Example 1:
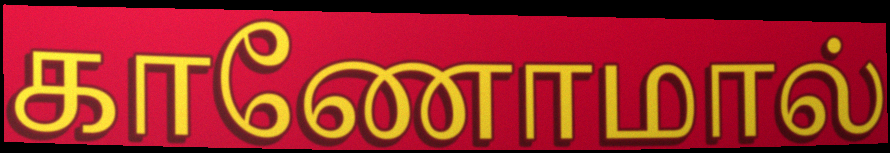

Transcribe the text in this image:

காணோமால்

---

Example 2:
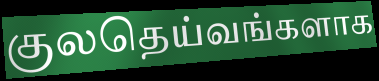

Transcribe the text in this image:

குலதெய்வங்களாக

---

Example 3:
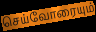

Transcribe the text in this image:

செய்வோரையும்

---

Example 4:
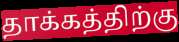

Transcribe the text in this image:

தாக்கத்திற்கு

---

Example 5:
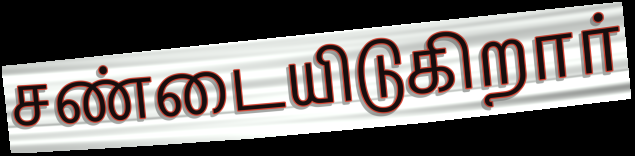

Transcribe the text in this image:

சண்டையிடுகிறார்